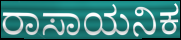
ರಾಸಾಯನಿಕ